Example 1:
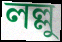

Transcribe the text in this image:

লল্লু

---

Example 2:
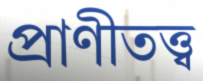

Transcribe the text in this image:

প্রাণীতত্ত্ব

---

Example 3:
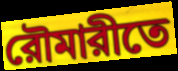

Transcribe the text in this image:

রৌমারীতে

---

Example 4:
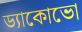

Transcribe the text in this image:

ড্যাকোভো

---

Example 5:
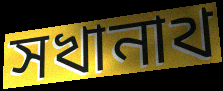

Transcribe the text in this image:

সখানাথ